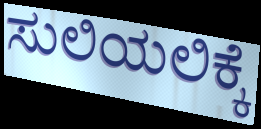
ಸುಲಿಯಲಿಕ್ಕೆ